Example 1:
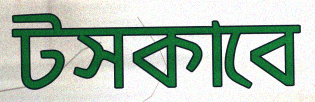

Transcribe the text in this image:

টসকাবে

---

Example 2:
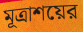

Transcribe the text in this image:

মূত্রাশয়ের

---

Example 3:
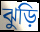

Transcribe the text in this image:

ঝুড়ি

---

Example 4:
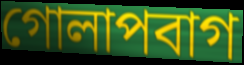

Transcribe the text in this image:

গোলাপবাগ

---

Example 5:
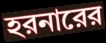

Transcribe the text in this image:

হরনারের